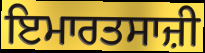
ਇਮਾਰਤਸਾਜ਼ੀ